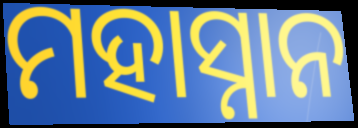
ମହାସ୍ନାନ